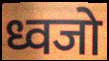
ध्वजो